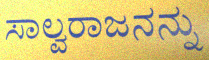
ಸಾಲ್ವರಾಜನನ್ನು